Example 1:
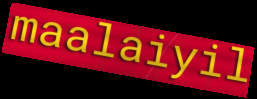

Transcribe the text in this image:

maalaiyil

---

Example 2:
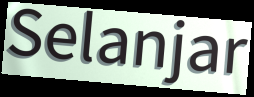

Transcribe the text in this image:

Selanjar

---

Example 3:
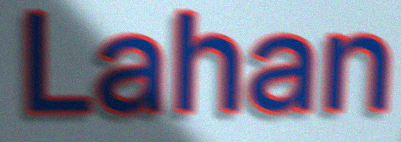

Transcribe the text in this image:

Lahan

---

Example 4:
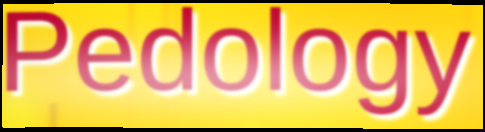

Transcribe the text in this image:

Pedology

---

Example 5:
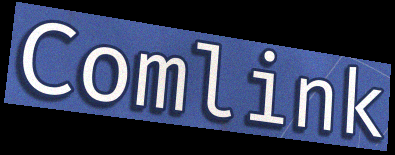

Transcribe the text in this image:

Comlink